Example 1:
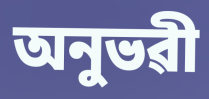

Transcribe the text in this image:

অনুভৱী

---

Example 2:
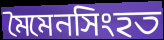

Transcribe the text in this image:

মৈমেনসিংহত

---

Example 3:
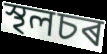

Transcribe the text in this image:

স্থলচৰ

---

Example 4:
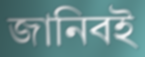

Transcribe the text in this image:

জানিবই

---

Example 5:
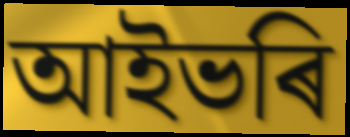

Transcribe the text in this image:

আইভৰি